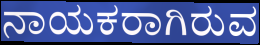
ನಾಯಕರಾಗಿರುವ